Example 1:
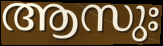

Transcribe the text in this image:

ആസുഃ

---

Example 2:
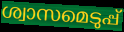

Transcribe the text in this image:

ശ്വാസമെടുപ്പ്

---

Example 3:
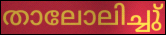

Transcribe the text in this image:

താലോലിച്ചു്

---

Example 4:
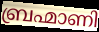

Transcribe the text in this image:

ബ്രഹ്മാണി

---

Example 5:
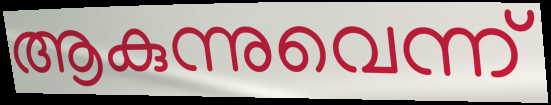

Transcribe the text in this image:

ആകുന്നുവെന്ന്